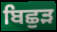
ਬਿਛੁੜ